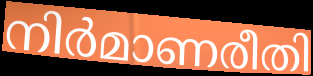
നിർമാണരീതി